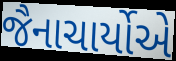
જૈનાચાર્યોએ